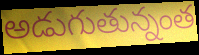
అడుగుతున్నంత